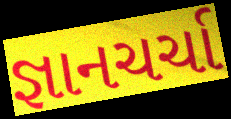
જ્ઞાનચર્ચા